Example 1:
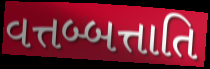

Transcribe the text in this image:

વત્તબ્બત્તાતિ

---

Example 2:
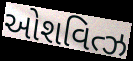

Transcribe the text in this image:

ઓશવિત્ઝ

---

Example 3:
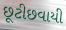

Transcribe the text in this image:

છૂટીછવાયી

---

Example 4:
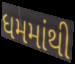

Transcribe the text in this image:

ધમમાંથી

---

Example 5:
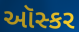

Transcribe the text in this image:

ઑસ્કર